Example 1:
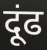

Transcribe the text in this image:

दूंढ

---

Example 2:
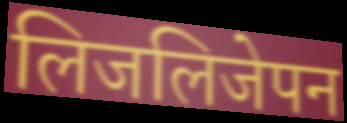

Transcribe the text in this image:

लिजलिजेपन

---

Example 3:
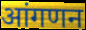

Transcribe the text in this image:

आंगणन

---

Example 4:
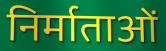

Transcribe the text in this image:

निर्माताओं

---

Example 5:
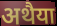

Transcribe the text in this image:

अथैया